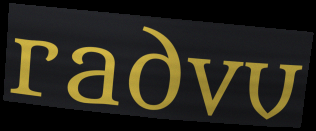
radvu